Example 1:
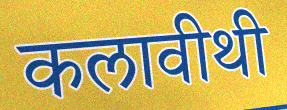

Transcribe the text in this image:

कलावीथी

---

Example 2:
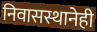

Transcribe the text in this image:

निवासस्थानेही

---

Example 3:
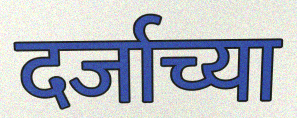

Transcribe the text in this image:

दर्जाच्या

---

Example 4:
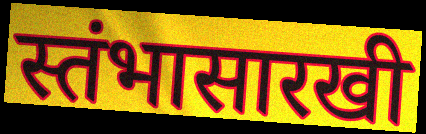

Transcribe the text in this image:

स्तंभासारखी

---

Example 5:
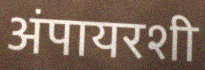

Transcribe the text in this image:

अंपायरशी